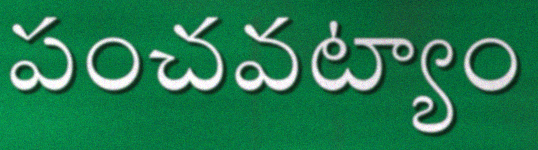
పంచవట్యాం